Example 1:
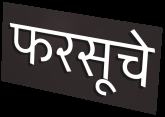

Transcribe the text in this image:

फरसूचे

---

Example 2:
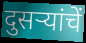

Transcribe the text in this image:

दुसऱ्यांचें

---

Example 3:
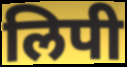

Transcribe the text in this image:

लिपी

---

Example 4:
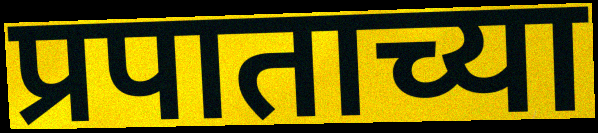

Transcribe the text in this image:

प्रपाताच्या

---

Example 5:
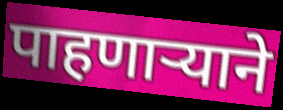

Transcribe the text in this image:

पाहणार्‍याने